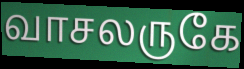
வாசலருகே